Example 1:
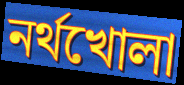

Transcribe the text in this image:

নর্থখোলা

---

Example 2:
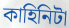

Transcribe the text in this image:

কাহিনিটা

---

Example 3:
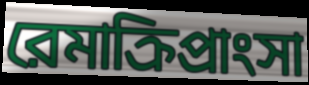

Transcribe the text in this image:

রেমাক্রিপ্রাংসা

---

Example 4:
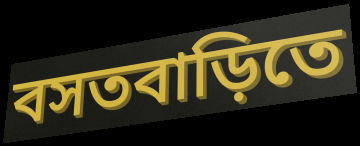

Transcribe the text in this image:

বসতবাড়িতে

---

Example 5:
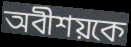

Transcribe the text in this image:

অবীশয়কে